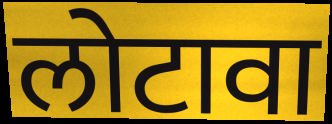
लोटावा